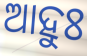
ଆହୁଃ